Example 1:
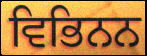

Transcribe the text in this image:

ਵਿਭਿਨਨ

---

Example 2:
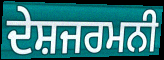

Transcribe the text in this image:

ਦੇਸ਼ਜਰਮਨੀ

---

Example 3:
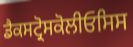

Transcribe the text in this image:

ਡੈਕਸਟ੍ਰੋਸਕੋਲੀਓਸਿਸ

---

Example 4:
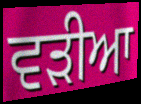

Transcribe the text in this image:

ਵੜੀਆ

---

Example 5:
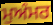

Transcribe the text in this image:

ਮੁਅੰਮਰ